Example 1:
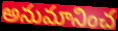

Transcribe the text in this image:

అనుమానించ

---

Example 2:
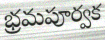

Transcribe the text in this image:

భ్రమపూర్వక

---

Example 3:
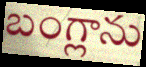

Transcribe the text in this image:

బంగ్లాను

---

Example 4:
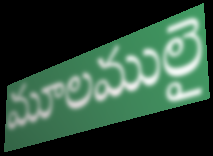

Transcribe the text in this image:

మూలములై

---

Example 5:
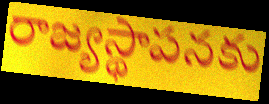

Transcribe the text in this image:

రాజ్యస్థాపనకు